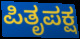
ಪಿತೃಪಕ್ಷ